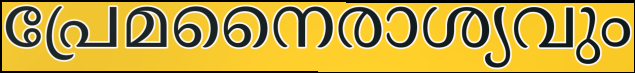
പ്രേമനൈരാശ്യവും